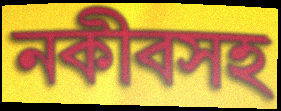
নকীবসহ